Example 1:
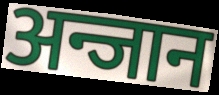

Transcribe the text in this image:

अन्जान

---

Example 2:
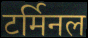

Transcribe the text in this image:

टर्मिनल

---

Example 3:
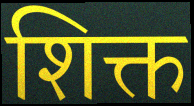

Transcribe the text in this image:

शिक्त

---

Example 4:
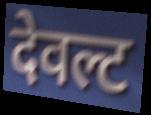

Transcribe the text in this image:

देवल्ट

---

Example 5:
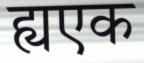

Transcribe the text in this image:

ह्यएक